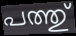
പത്തു്